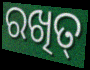
ରଖିତ୍